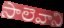
సాలెవాని